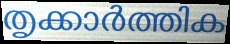
തൃക്കാർത്തിക